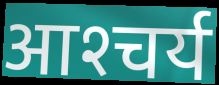
आश्चर्य